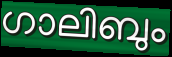
ഗാലിബും